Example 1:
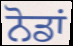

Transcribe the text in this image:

ਨੋਡਾਂ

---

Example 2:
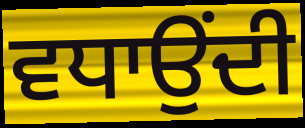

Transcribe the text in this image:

ਵਧਾਉਂਦੀ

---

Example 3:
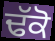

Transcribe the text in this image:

ਢੱਕੋ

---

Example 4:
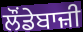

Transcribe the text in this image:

ਲੌਂਡੇਬਾਜ਼ੀ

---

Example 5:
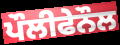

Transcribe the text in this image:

ਪੌਲੀਫੇਨੌਲ